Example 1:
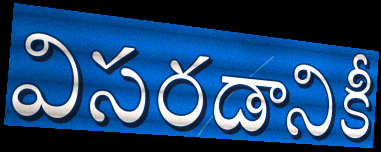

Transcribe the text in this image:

విసరడానికీ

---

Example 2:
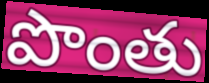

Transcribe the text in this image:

పొంతు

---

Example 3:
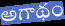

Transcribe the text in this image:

అగాథం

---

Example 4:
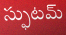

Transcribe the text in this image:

స్ఫుటమ్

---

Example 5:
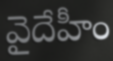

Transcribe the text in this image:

వైదేహీం